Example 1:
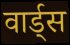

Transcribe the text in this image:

वार्ड्स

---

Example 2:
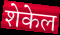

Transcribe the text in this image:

शेकेल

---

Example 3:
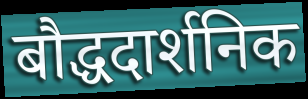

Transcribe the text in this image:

बौद्धदार्शनिक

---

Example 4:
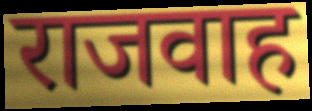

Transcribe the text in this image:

राजवाह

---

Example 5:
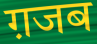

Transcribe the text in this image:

ग़जब